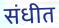
संधीत